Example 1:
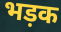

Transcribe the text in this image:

भड़क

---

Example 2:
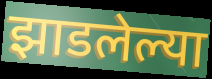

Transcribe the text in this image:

झाडलेल्या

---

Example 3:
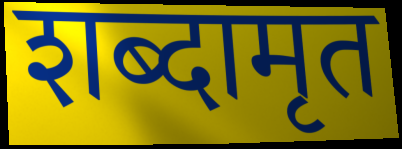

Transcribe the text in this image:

शब्दामृत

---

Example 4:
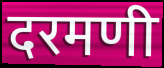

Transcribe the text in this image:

दरमणी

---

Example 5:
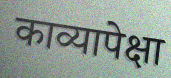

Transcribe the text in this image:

काव्यापेक्षा